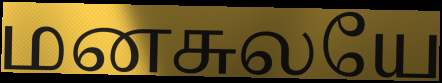
மனசுலயே